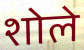
शोले